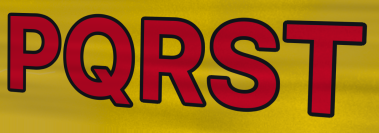
PQRST